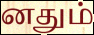
னதும்